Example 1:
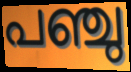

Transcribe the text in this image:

പഞ്ചു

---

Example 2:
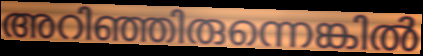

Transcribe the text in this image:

അറിഞ്ഞിരുന്നെങ്കിൽ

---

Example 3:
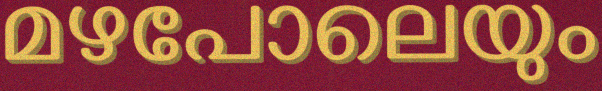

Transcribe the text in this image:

മഴപോലെയും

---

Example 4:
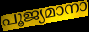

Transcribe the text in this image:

പൂജ്യമാനാ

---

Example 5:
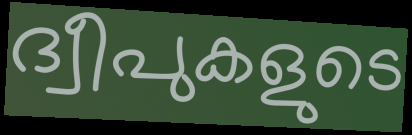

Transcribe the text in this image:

ദ്വീപുകളുടെ